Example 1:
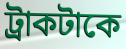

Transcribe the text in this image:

ট্রাকটাকে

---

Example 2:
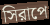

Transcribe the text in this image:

সিরাপে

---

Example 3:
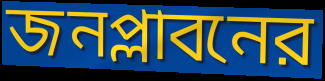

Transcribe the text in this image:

জনপ্লাবনের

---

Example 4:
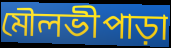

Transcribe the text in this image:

মৌলভীপাড়া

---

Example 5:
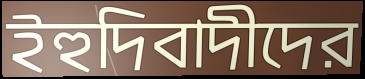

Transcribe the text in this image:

ইহুদিবাদীদের